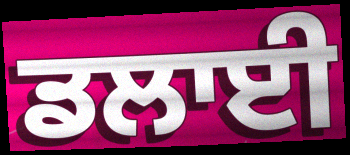
ਡਲਾਈ